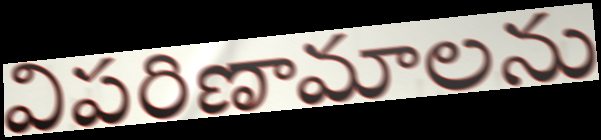
విపరిణామాలను